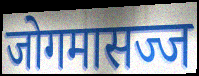
जोगमासज्ज